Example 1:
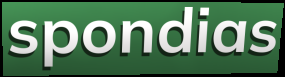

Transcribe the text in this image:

spondias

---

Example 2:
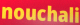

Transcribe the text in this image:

nouchali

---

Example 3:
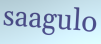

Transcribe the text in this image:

saagulo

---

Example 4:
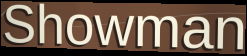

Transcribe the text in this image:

Showman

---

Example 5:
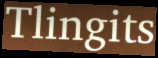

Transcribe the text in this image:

Tlingits